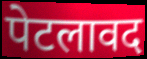
पेटलावद